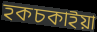
হকচকাইয়া